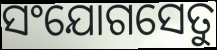
ସଂଯୋଗସେତୁ